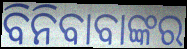
ବିନିବାବାଙ୍କର